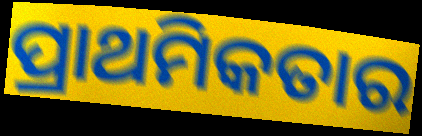
ପ୍ରାଥମିକତାର